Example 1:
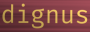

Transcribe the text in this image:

dignus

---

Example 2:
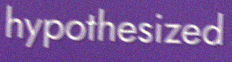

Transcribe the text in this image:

hypothesized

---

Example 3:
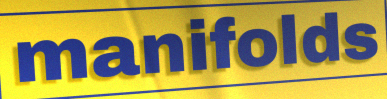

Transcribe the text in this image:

manifolds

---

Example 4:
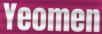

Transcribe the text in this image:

Yeomen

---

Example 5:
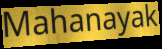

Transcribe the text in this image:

Mahanayak